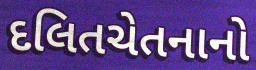
દલિતચેતનાનો